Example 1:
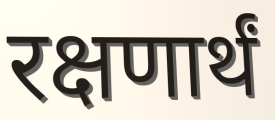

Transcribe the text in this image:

रक्षणार्थं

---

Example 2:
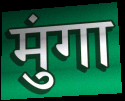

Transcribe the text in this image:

मुंगा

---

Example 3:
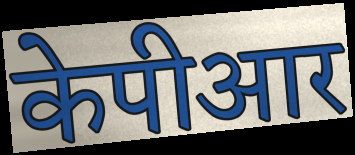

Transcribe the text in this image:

केपीआर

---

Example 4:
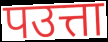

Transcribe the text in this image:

पउत्ता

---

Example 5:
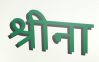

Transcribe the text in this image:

श्रीना